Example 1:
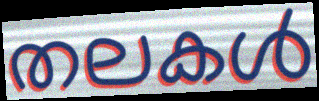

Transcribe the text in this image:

തലകൾ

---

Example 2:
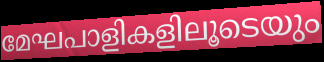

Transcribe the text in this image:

മേഘപാളികളിലൂടെയും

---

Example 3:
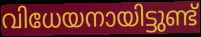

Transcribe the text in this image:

വിധേയനായിട്ടുണ്ട്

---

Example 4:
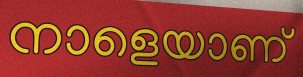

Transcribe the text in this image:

നാളെയാണ്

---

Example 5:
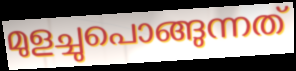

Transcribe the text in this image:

മുളച്ചുപൊങ്ങുന്നത്